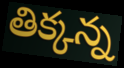
తిక్కన్న